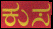
ಕುಸ